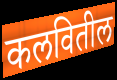
कलवितील